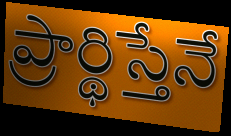
ప్రార్థిస్తేనే